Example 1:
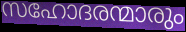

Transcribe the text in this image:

സഹോദരന്മാരും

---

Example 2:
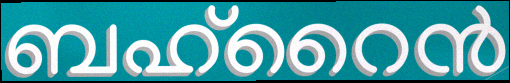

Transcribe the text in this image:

ബഹ്റൈൻ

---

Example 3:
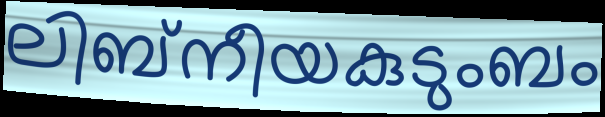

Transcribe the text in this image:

ലിബ്നീയകുടുംബം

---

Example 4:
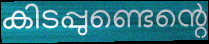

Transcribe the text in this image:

കിടപ്പുണ്ടെന്റെ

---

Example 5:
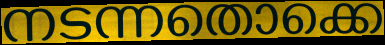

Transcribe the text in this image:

നടന്നതൊക്കെ